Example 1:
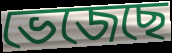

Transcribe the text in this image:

ভেজেছে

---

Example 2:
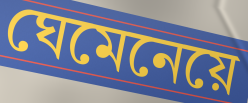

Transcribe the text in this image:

ঘেমেনেয়ে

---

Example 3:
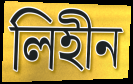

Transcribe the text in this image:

লিহীন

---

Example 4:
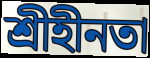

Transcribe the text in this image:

শ্রীহীনতা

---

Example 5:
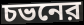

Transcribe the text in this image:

চভনের